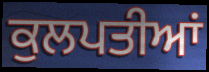
ਕੁਲਪਤੀਆਂ